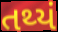
તથ્યં